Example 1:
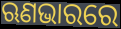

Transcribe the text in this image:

ଋଣଭାରରେ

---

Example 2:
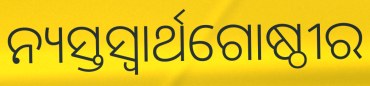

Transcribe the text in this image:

ନ୍ୟସ୍ତସ୍ୱାର୍ଥଗୋଷ୍ଠୀର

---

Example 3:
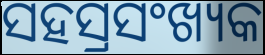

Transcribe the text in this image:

ସହସ୍ରସଂଖ୍ୟକ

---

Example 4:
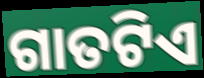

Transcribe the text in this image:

ଗାତଟିଏ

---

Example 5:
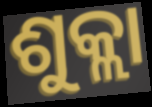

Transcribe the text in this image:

ଶୁକ୍ଲା